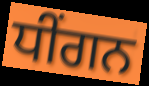
ਧੀਂਗਨ